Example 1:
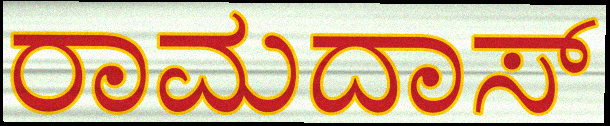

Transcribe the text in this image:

ರಾಮದಾಸ್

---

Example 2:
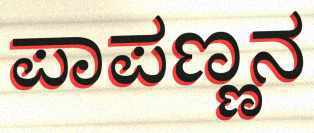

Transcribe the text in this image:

ಪಾಪಣ್ಣನ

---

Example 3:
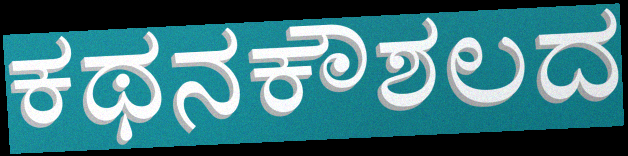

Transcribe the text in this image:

ಕಥನಕೌಶಲದ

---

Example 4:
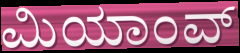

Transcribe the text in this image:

ಮಿಯಾಂವ್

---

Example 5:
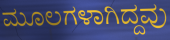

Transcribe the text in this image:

ಮೂಲಗಳಾಗಿದ್ದವು